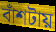
বাঁশটায়